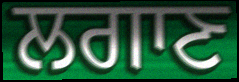
ਲਗਾਣ